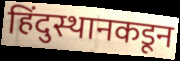
हिंदुस्थानकडून